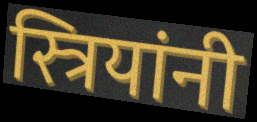
स्त्रियांनी